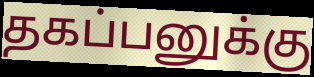
தகப்பனுக்கு